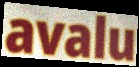
avalu